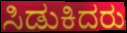
ಸಿಡುಕಿದರು